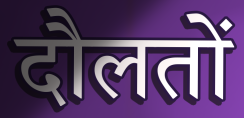
दौलतों